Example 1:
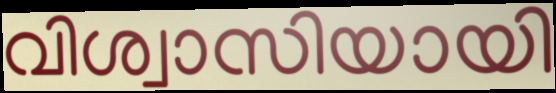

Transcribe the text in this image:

വിശ്വാസിയായി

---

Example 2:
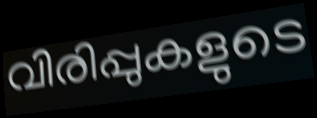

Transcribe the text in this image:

വിരിപ്പുകളുടെ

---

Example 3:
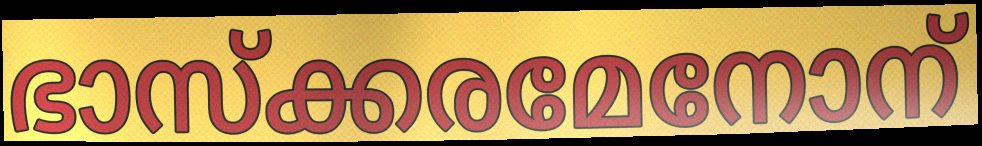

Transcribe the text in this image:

ഭാസ്ക്കരമേനോന്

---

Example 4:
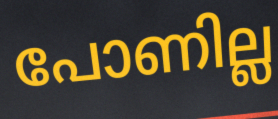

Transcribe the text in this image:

പോണില്ല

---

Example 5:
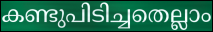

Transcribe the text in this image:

കണ്ടുപിടിച്ചതെല്ലാം